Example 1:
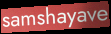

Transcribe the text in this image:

samshayave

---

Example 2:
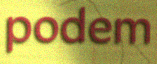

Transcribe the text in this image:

podem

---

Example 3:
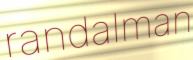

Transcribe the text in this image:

randalman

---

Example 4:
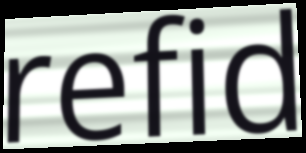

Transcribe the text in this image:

refid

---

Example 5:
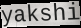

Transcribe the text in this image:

yakshi